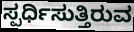
ಸ್ಪರ್ಧಿಸುತ್ತಿರುವ